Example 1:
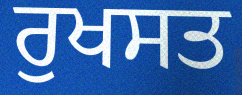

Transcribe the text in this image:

ਰੁਖਸਤ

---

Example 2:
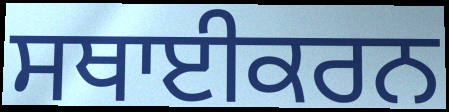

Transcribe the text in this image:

ਸਥਾਈਕਰਨ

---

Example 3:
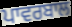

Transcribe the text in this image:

ਪਾਵਰਬਾਲ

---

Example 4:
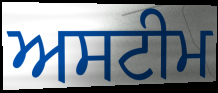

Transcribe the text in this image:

ਅਸਟੀਮ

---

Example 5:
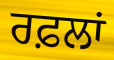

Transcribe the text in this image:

ਰਫ਼ਲਾਂ